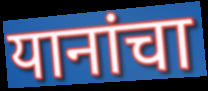
यानांचा